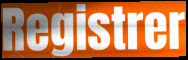
Registrer